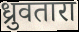
ध्रुवतारा